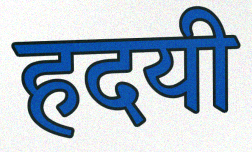
हदयी